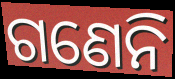
ଗଣେନି